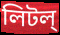
লিটল্